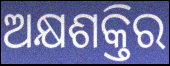
ଅକ୍ଷଶକ୍ତିର